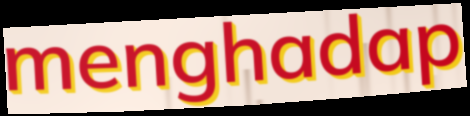
menghadap